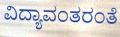
ವಿದ್ಯಾವಂತರಂತೆ